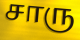
சாரு